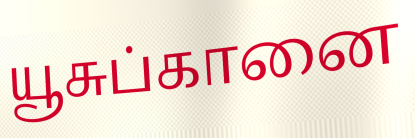
யூசுப்கானை